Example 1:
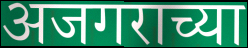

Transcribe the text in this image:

अजगराच्या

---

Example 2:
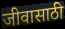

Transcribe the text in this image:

जीवासाठी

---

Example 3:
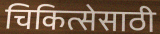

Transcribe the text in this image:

चिकित्सेसाठी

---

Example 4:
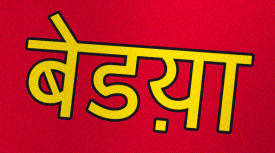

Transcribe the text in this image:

बेडय़ा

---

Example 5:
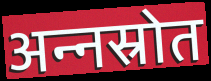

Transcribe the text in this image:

अन्नस्रोत